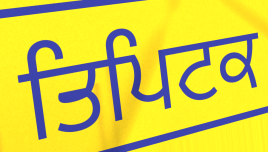
ਤਿਪਿਟਕ